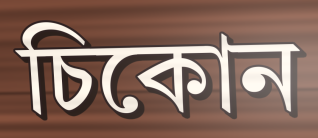
চিকোন